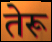
तेरू